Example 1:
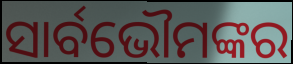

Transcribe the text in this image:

ସାର୍ବଭୌମଙ୍କର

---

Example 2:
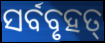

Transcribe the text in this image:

ସର୍ବବୃହତ୍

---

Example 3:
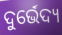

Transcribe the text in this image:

ଦୁର୍ଭେଦ୍ୟ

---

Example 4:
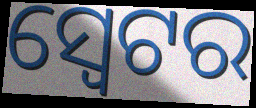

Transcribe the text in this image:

ସ୍ଵେଟର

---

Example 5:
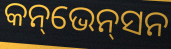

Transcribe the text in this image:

କନ୍‌ଭେନ୍‌ସନ